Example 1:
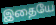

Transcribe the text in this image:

இதையே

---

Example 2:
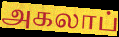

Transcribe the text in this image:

அகலாப்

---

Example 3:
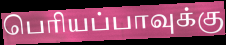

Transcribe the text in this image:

பெரியப்பாவுக்கு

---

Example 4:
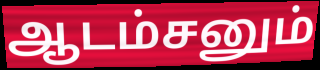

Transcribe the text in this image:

ஆடம்சனும்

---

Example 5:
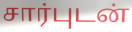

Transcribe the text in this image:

சார்புடன்